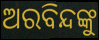
ଅରବିନ୍ଦଙ୍କୁ